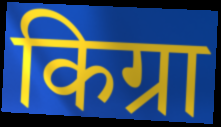
किग्रा